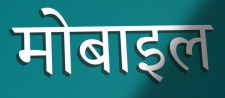
मोबाइल